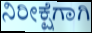
ನಿರೀಕ್ಷೆಗಾಗಿ